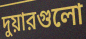
দুয়ারগুলো